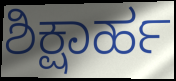
ಶಿಕ್ಷಾರ್ಹ